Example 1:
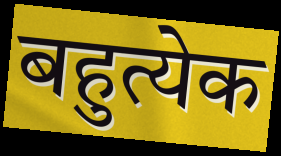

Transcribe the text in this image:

बहुत्येक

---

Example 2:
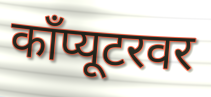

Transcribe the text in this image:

काँप्यूटरवर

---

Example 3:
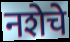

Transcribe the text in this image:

नशेचे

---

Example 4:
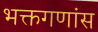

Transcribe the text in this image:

भक्तगणांस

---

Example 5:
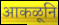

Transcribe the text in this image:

आकळूनि